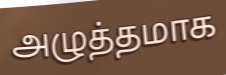
அழுத்தமாக